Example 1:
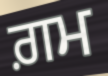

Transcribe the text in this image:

ਗ਼ਮ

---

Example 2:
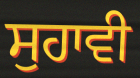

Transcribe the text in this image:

ਸੁਹਾਵੀ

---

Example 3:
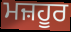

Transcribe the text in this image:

ਮਜ਼ਹੂਰ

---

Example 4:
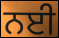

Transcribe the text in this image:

ਨਈ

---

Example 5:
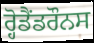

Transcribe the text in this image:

ਰ੍ਹੋਡੈਂਡਰੌਨਸ